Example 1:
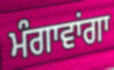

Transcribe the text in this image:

ਮੰਗਾਵਾਂਗਾ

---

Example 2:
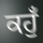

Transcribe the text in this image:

ਕਹੁਁ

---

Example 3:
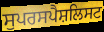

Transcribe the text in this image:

ਸੁਪਰਸਪੈਸ਼ਲਿਸਟ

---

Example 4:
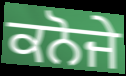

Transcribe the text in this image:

ਕਨੋਜੇ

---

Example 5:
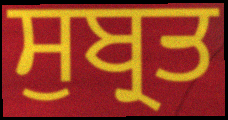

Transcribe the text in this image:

ਸੁਬ੍ਰਤ